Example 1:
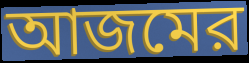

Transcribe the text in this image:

আজমের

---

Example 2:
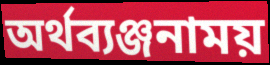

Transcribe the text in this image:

অর্থব্যঞ্জনাময়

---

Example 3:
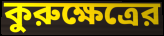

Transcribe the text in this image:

কুরুক্ষেত্রের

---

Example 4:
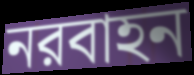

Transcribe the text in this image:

নরবাহন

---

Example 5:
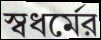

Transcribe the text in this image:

স্বধর্মের